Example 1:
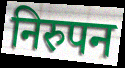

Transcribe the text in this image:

निरुपन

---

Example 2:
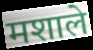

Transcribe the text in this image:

मशाले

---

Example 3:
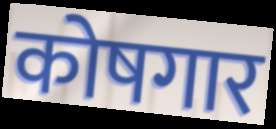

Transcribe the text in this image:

कोषगार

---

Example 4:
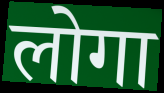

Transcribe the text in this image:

लोगा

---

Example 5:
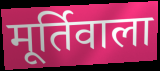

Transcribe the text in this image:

मूर्तिवाला